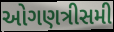
ઓગણત્રીસમી